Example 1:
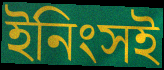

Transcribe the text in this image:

ইনিংসই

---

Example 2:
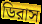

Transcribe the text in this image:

ডিরাস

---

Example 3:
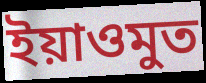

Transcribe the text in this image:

ইয়াওমুত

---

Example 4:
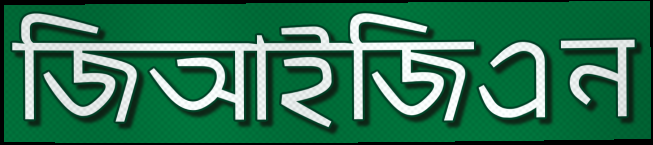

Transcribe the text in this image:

জিআইজিএন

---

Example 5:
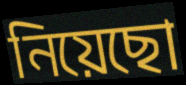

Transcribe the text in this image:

নিয়েছো